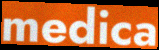
medica